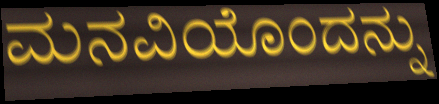
ಮನವಿಯೊಂದನ್ನು